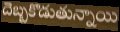
దెబ్బకొడుతున్నాయి